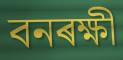
বনৰক্ষী